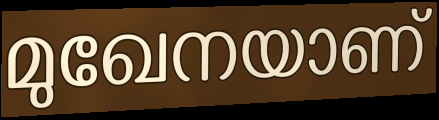
മുഖേനയാണ്